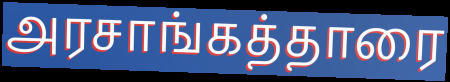
அரசாங்கத்தாரை